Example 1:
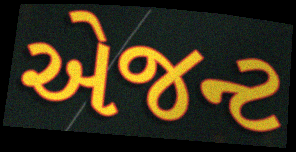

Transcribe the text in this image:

એજન્ટ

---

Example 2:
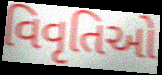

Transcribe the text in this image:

વિવૃતિઓ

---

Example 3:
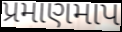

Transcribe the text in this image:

પ્રમાણમાપ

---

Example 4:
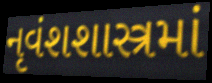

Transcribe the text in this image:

નૃવંશશાસ્ત્રમાં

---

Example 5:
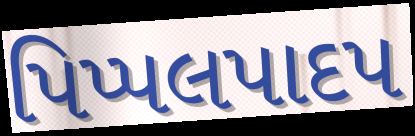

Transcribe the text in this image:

પિપ્પલપાદપ